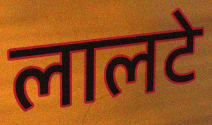
लालटे